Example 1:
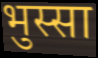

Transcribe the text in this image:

भुस्सा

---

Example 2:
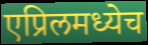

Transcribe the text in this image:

एप्रिलमध्येच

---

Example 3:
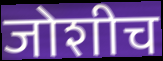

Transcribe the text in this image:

जोशीच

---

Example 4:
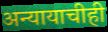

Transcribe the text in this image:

अन्यायाचीही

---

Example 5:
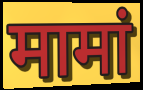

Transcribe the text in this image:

मामां